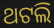
ଥଟଲି